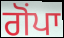
ਗੋਂਪਾ